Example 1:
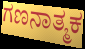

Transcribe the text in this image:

ಗಣನಾತ್ಮಕ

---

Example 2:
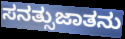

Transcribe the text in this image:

ಸನತ್ಸುಜಾತನು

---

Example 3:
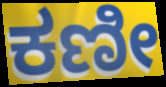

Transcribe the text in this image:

ಕಣೀ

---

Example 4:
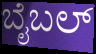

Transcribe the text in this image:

ಬೈಬಲ್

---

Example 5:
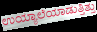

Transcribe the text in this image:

ಉಯ್ಯಾಲೆಯಾಡುತ್ತಿತ್ತು